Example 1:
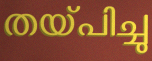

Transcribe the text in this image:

തയ്പിച്ചു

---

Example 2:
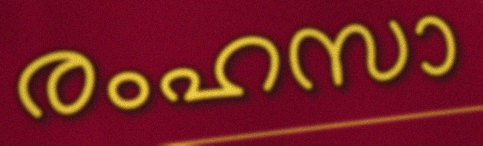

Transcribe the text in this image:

രംഹസാ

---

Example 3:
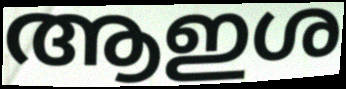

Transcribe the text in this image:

ആഇശ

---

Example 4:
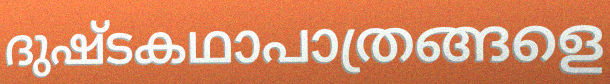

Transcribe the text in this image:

ദുഷ്ടകഥാപാത്രങ്ങളെ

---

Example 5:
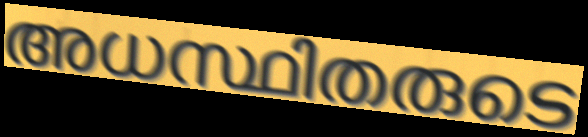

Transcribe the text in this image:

അധസ്ഥിതരുടെ